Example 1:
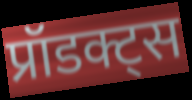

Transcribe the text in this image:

प्रॉडक्ट्स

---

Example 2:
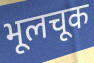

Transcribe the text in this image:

भूलचूक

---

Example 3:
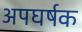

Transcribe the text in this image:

अपघर्षक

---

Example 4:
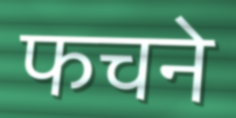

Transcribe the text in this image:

फचने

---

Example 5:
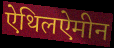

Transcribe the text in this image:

ऐथिलऐमीन